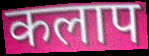
कलाप